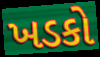
ખડકો